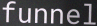
funnel